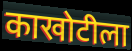
काखोटीला